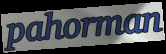
pahorman